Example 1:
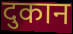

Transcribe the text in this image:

दुकान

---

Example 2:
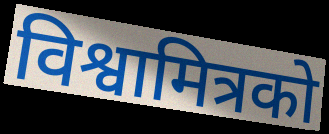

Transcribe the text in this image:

विश्वामित्रको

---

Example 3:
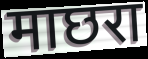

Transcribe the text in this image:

माछरा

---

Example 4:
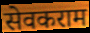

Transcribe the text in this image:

सेवकराम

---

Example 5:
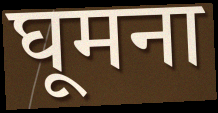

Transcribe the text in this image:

घूमना